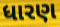
ધારણ